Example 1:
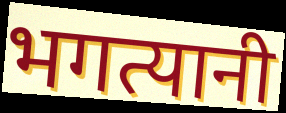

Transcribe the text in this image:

भगत्यानी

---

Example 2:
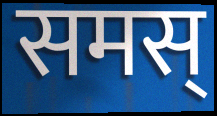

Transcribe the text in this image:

समस्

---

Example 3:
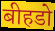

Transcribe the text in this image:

बीहडो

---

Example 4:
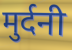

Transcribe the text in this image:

मुर्दनी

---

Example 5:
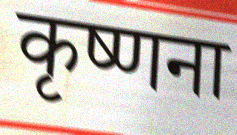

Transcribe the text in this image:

कृष्णना